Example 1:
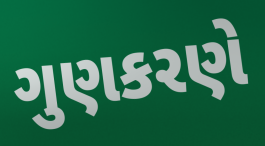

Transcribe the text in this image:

ગુણકરણે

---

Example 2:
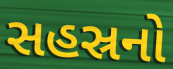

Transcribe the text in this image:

સહસ્રનો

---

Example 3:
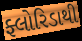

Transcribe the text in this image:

ફ્લોરિડાથી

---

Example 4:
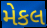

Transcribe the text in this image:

મેકલ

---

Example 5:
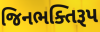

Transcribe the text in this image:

જિનભક્તિરૂપ